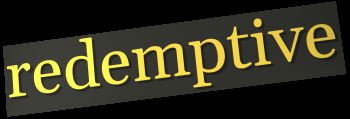
redemptive